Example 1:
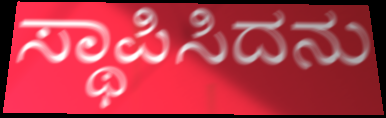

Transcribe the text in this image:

ಸ್ಥಾಪಿಸಿದನು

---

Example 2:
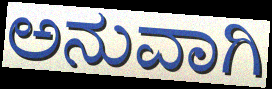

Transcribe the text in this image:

ಅನುವಾಗಿ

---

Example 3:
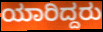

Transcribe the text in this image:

ಯಾರಿದ್ದರು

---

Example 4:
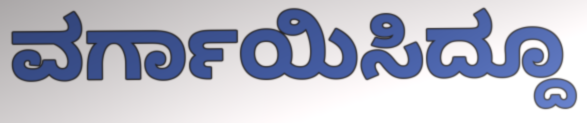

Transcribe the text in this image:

ವರ್ಗಾಯಿಸಿದ್ದೂ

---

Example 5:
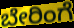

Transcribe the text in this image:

ಬೇರಿಂಗೆ